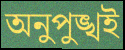
অনুপুঙ্খই